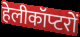
हेलीकॉप्‍टरों